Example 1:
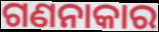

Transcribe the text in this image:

ଗଣନାକାର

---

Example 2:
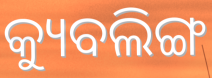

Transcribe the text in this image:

କ୍ୟୁବଲିଙ୍ଗ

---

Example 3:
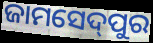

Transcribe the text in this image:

ଜାମସେଦ୍‌ପୁର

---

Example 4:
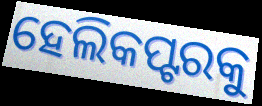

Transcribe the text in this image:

ହେଲିକପ୍ଟରକୁ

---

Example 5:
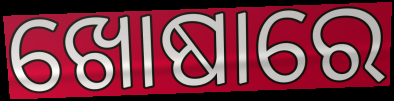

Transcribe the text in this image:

ଖୋଷାରେ